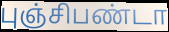
புஞ்சிபண்டா